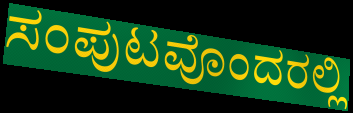
ಸಂಪುಟವೊಂದರಲ್ಲಿ